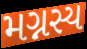
મગ્નસ્ય